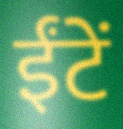
ईंटें